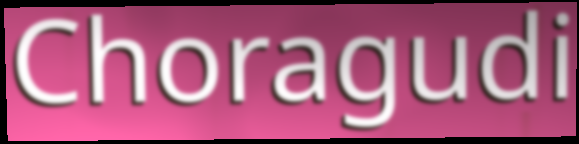
Choragudi